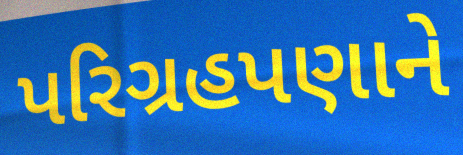
પરિગ્રહપણાને